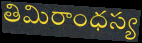
తిమిరాంధస్య